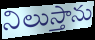
నిలుస్తాను